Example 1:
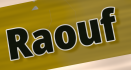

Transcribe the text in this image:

Raouf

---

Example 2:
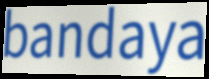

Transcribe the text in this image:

bandaya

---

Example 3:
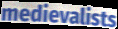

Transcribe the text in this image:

medievalists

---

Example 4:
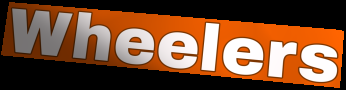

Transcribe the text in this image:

Wheelers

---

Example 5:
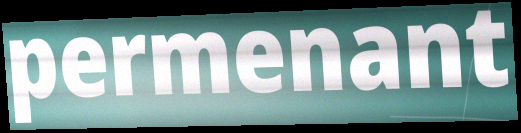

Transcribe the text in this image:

permenant